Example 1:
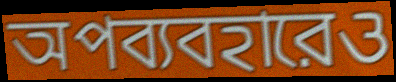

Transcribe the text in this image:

অপব্যবহারেও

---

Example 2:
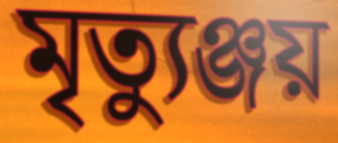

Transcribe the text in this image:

মৃত্যুঞ্জয়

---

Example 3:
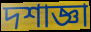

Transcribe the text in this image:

দশাজ্ঞা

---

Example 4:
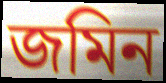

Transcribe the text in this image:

জমিন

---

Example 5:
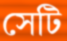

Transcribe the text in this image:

সেটি